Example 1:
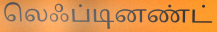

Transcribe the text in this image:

லெஃப்டினண்ட்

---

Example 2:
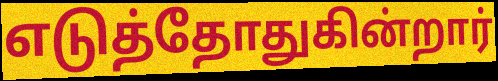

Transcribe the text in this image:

எடுத்தோதுகின்றார்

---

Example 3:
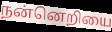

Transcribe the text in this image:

நன்னெறியை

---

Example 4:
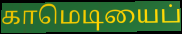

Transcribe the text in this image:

காமெடியைப்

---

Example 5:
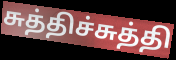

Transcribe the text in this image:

சுத்திச்சுத்தி